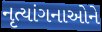
નૃત્યાંગનાઓને